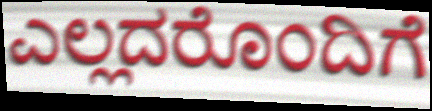
ಎಲ್ಲದರೊಂದಿಗೆ